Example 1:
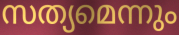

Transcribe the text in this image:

സത്യമെന്നും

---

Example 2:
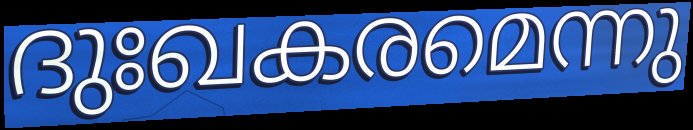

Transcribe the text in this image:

ദുഃഖകരമെന്നു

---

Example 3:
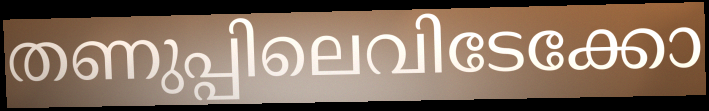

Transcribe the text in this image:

തണുപ്പിലെവിടേക്കോ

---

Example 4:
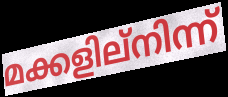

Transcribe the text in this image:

മക്കളില്നിന്ന്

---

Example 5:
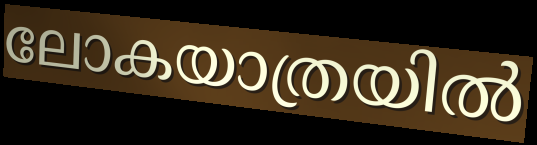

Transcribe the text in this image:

ലോകയാത്രയിൽ